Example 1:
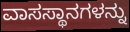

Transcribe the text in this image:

ವಾಸಸ್ಥಾನಗಳನ್ನು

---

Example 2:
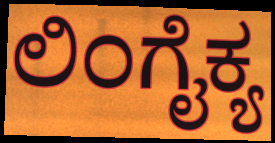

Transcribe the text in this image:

ಲಿಂಗೈಕ್ಯ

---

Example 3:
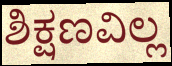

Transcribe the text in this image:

ಶಿಕ್ಷಣವಿಲ್ಲ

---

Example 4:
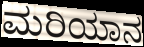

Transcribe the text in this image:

ಮರಿಯಾನ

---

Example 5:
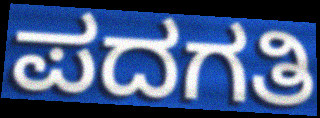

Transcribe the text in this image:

ಪದಗತಿ